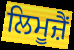
ਲਿਮੂਜ਼ੈਂ